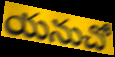
యనుచో